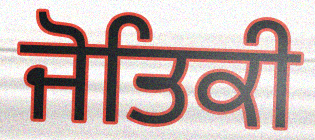
ਜੋਤਿਕੀ